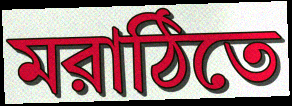
মরাঠিতে